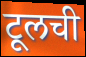
टूलची